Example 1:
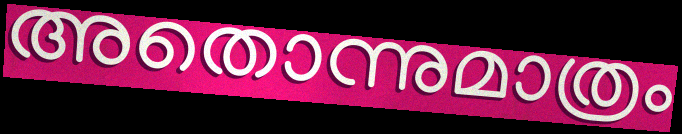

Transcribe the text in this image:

അതൊന്നുമാത്രം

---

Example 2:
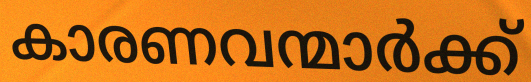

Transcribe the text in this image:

കാരണവന്മാർക്ക്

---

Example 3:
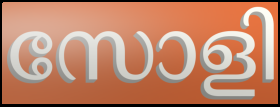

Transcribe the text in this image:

സോളി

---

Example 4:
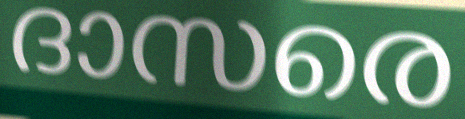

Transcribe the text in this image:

ദാസരെ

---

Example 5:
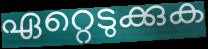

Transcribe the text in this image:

ഏറ്റെടുക്കുക